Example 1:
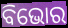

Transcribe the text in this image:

ବିଭୋର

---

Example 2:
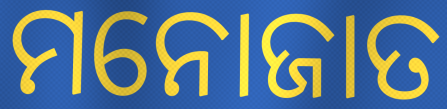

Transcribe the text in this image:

ମନୋଜାତ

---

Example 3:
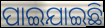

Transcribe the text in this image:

ପାଇଯାଇଛି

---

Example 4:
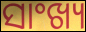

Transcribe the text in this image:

ସାଂଖ୍ଯ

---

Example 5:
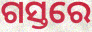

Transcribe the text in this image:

ଗସ୍ତରେ